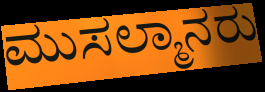
ಮುಸಲ್ಮಾನರು